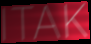
ITAK